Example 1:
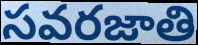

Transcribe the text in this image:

సవరజాతి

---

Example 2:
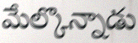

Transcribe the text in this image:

మేల్కొన్నాడు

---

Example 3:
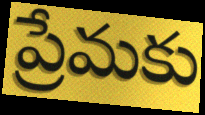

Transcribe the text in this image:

ప్రేమకు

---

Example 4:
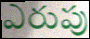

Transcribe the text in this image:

ఎరుపు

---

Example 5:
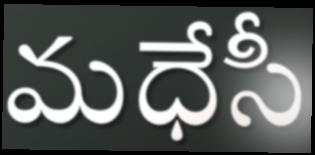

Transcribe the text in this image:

మధేసీ